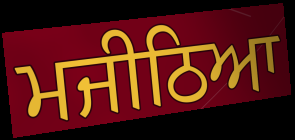
ਮਜੀਠਿਆ